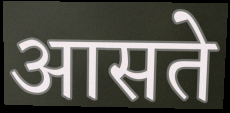
आसते